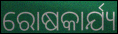
ରୋଷକାର୍ଯ୍ୟ